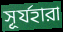
সূর্যহারা